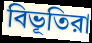
বিভূতিরা